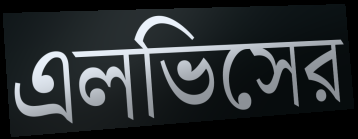
এলভিসের